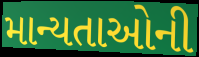
માન્યતાઓની